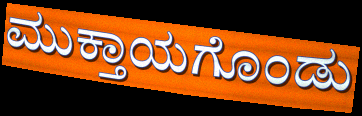
ಮುಕ್ತಾಯಗೊಂಡು